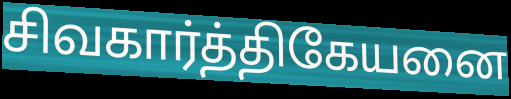
சிவகார்த்திகேயனை